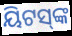
ୟିଟସ୍‌ଙ୍କ